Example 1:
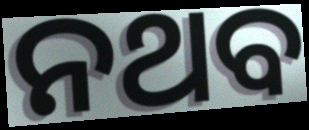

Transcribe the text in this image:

ନଥବ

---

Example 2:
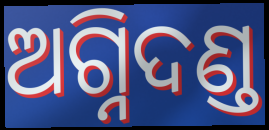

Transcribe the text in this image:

ଅଗ୍ନିଦଣ୍ଡ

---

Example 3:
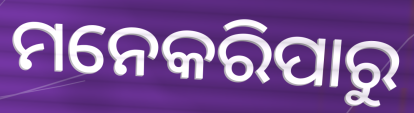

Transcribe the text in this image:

ମନେକରିପାରୁ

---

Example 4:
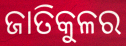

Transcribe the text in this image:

ଜାତିକୁଳର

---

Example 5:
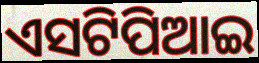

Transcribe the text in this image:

ଏସଟିପିଆଇ